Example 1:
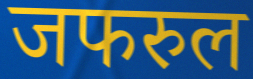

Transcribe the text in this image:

जफरुल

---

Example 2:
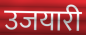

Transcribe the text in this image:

उजयारी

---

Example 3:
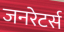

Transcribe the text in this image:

जनरेटर्स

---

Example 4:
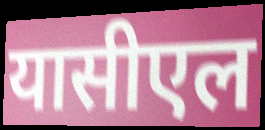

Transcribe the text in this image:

यासीएल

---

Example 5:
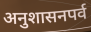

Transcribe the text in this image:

अनुशासनपर्व